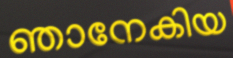
ഞാനേകിയ